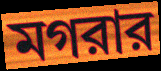
মগরার